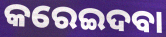
କରେଇଦବା